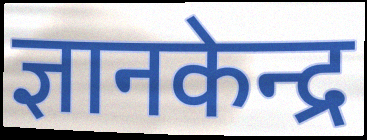
ज्ञानकेन्द्र